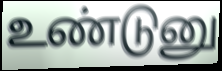
உண்டுனு